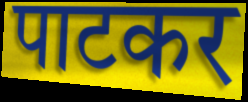
पाटकर